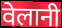
वेलानी